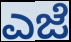
ಎಜೆ